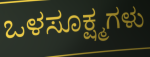
ಒಳಸೂಕ್ಷ್ಮಗಳು